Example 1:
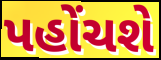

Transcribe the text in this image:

પહોંચશે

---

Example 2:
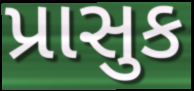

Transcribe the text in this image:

પ્રાસુક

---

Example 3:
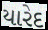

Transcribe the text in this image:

યારેદ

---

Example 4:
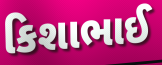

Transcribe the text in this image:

કિશાભાઈ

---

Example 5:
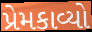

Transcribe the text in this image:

પ્રેમકાવ્યો